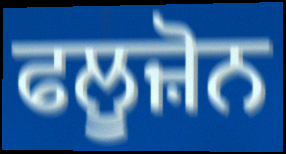
ਫਲੂਜ਼ੋਨ